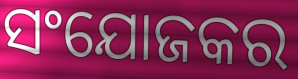
ସଂଯୋଜକର